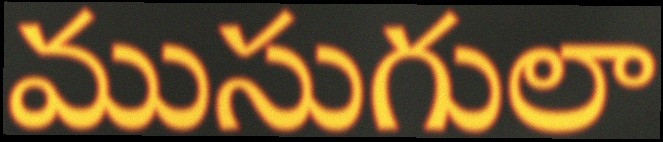
ముసుగులా